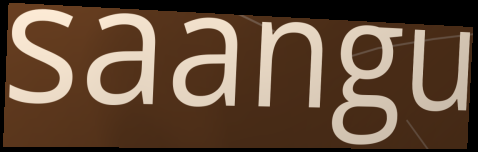
saangu